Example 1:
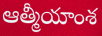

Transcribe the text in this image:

ఆత్మీయాంశ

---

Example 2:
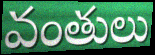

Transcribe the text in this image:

వంతులు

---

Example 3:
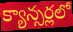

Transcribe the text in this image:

క్యాన్సర్లలో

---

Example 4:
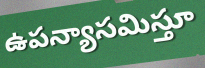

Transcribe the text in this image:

ఉపన్యాసమిస్తూ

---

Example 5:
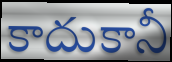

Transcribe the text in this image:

కాదుకానీ